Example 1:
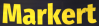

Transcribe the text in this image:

Markert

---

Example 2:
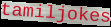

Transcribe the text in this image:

tamiljokes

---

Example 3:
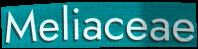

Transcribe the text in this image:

Meliaceae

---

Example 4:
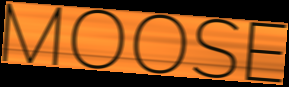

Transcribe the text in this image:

MOOSE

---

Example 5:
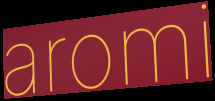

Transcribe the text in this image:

aromi